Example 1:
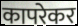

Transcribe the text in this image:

कापरेकर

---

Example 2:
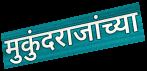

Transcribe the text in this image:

मुकुंदराजांच्या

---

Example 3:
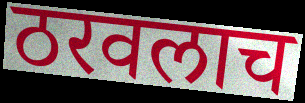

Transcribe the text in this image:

ठरवलाच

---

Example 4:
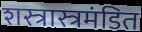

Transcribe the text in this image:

शस्त्रास्त्रमंडित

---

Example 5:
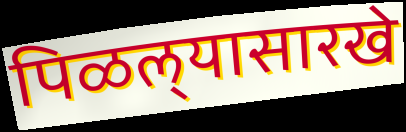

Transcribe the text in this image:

पिळल्यासारखे